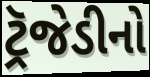
ટ્રૅજેડીનો